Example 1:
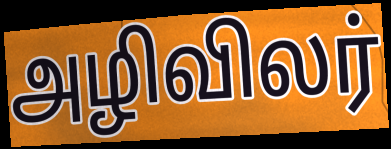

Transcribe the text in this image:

அழிவிலர்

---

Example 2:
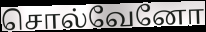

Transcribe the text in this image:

சொல்வேனோ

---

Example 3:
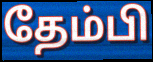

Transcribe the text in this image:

தேம்பி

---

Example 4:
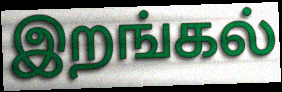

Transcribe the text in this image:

இறங்கல்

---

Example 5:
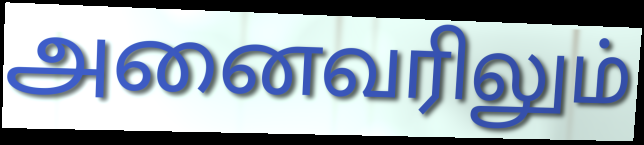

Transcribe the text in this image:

அனைவரிலும்